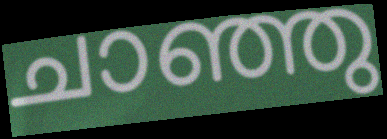
ചാഞ്ഞു